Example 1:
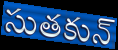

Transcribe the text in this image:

సుతకున్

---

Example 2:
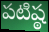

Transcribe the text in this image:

పటిష్ఠ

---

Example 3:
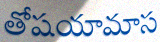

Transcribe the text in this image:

తోషయామాస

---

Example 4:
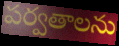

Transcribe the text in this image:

పర్వతాలను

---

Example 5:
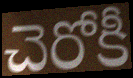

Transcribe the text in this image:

చెరోకీ